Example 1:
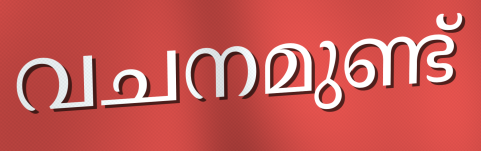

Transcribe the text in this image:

വചനമുണ്ട്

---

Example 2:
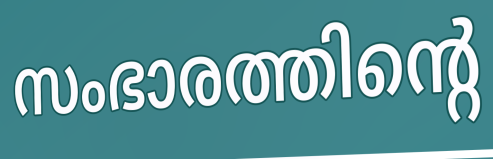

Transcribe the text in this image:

സംഭാരത്തിന്റെ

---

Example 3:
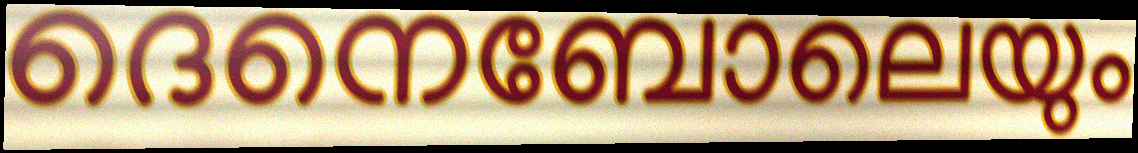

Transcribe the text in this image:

ദെനെബോലെയും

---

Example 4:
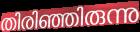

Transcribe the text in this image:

തിരിഞ്ഞിരുന്നു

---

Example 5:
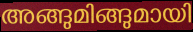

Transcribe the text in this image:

അങ്ങുമിങ്ങുമായി